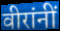
वीरांनीं